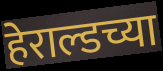
हेराल्डच्या